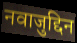
नवाजुद्दिन